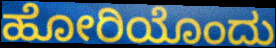
ಹೋರಿಯೊಂದು